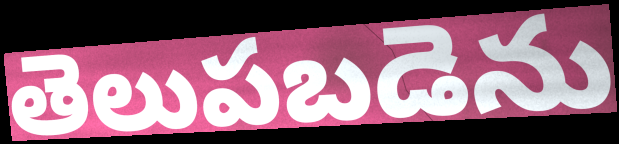
తెలుపబడెను